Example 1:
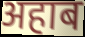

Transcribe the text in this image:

अहाब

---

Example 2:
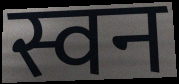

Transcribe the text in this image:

स्वन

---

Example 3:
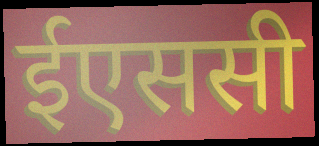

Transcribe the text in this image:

ईएससी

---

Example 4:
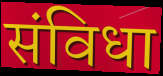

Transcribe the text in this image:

संविधा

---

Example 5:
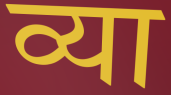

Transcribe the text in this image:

व्या